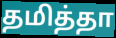
தமித்தா